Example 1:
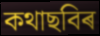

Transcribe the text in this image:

কথাছবিৰ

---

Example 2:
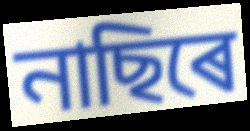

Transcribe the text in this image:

নাছিৰে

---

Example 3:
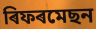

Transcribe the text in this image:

ৰিফৰমেছন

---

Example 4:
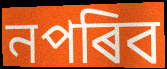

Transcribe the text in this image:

নপৰিব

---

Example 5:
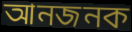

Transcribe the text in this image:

আনজনক